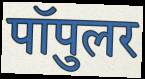
पॉपुलर